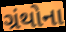
ગ્રંથોના